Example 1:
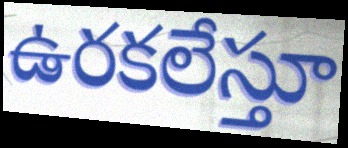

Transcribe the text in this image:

ఉరకలేస్తూ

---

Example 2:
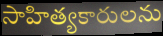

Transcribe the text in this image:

సాహిత్యకారులను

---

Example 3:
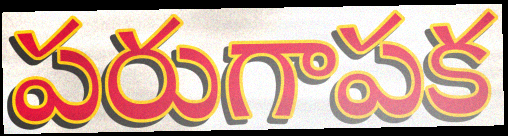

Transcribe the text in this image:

పరుగాపక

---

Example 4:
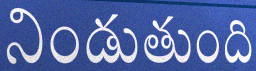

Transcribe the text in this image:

నిండుతుంది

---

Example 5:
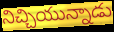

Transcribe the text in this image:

నిచ్చియున్నాడు